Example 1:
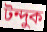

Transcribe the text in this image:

টন্দুক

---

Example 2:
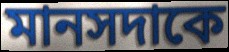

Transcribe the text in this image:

মানসদাকে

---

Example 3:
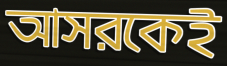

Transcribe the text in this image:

আসরকেই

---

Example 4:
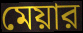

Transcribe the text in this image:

মেয়ার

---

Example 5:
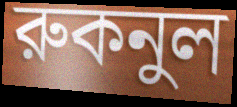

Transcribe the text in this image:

রুকনুল